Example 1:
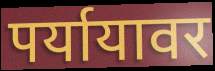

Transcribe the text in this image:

पर्यायावर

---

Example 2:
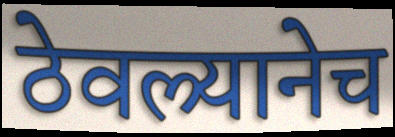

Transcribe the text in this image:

ठेवल्यानेच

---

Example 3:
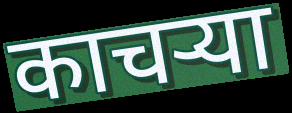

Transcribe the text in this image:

काचऱ्या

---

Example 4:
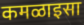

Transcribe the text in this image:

कमळाइसा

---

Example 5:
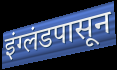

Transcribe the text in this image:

इंग्लंडपासून